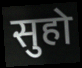
सुहो